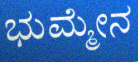
ಭುಮ್ಮೇನ